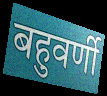
बहुवर्णी